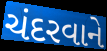
ચંદરવાને